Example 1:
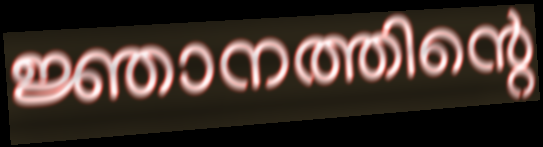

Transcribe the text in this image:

ജ്ഞാനത്തിന്റെ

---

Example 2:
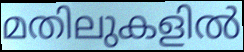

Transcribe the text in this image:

മതിലുകളിൽ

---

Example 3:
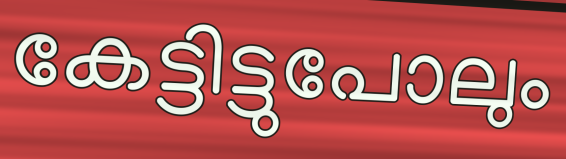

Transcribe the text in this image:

കേട്ടിട്ടുപോലും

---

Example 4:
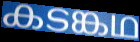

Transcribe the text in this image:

കടങ്കഥ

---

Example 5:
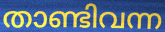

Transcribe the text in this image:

താണ്ടിവന്ന